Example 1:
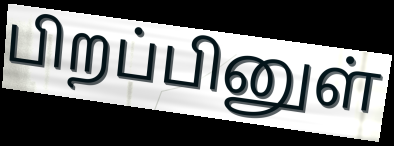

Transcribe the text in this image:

பிறப்பினுள்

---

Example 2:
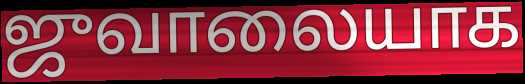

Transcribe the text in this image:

ஜுவாலையாக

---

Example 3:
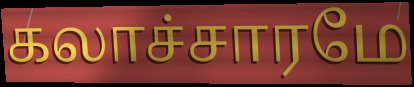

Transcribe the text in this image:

கலாச்சாரமே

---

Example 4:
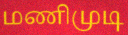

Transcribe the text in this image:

மணிமுடி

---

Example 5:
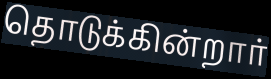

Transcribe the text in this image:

தொடுக்கின்றார்